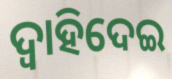
ଦ୍ବାହିଦେଇ